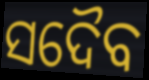
ସଦୈବ